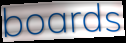
boards